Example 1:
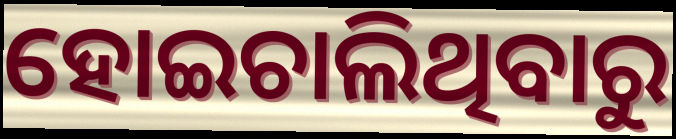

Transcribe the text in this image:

ହୋଇଚାଲିଥିବାରୁ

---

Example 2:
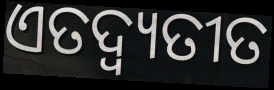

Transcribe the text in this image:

ଏତଦ୍ବ୍ୟତୀତ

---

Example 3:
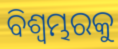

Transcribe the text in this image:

ବିଶ୍ୱମ୍ଭରକୁ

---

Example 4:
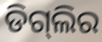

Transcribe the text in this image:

ଡିଗ୍‌ଲିର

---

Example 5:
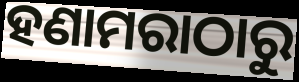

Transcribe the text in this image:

ହଣାମରାଠାରୁ